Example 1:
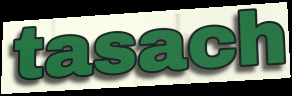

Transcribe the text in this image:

tasach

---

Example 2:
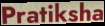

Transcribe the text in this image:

Pratiksha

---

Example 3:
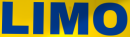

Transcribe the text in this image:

LIMO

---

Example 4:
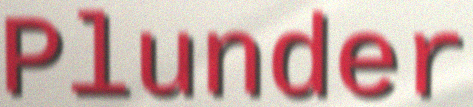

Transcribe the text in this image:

Plunder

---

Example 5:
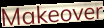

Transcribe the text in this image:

Makeover